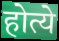
होत्ये